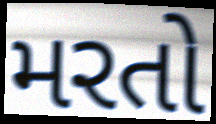
મરતો